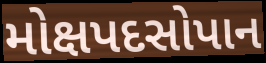
મોક્ષપદસોપાન